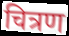
चित्रण